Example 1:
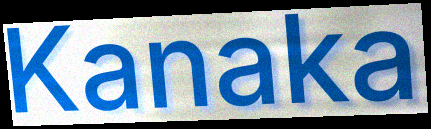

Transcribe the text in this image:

Kanaka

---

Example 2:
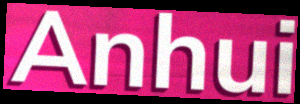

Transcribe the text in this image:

Anhui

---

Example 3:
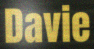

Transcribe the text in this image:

Davie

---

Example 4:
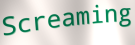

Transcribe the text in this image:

Screaming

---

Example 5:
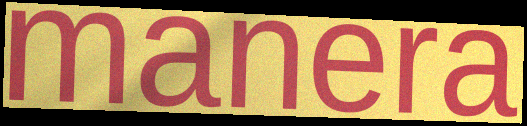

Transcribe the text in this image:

manera